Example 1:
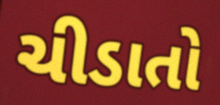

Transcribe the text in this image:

ચીડાતો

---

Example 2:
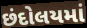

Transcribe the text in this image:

છંદોલયમાં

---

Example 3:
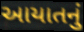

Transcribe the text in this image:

આયાતનું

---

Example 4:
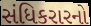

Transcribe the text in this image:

સંધિકરારનો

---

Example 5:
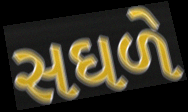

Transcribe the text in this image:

સઘળે